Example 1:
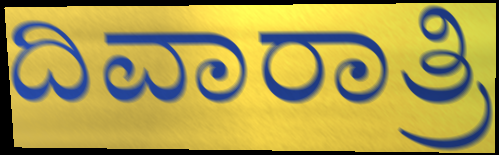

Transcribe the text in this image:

ದಿವಾರಾತ್ರಿ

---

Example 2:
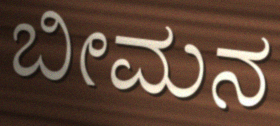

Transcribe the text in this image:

ಬೀಮನ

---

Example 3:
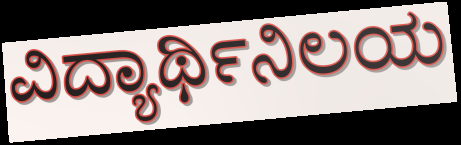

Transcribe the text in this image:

ವಿದ್ಯಾರ್ಥಿನಿಲಯ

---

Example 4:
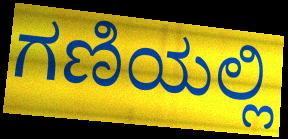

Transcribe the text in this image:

ಗಣಿಯಲ್ಲಿ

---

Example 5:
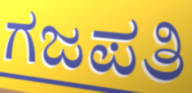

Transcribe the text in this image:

ಗಜಪತಿ